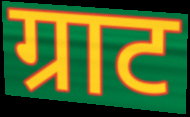
ग्राट